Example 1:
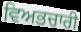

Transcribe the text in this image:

ਵਿਅਭਚਾਰੀ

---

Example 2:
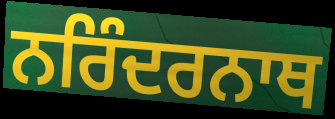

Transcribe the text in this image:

ਨਰਿੰਦਰਨਾਥ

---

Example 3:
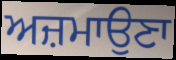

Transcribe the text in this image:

ਅਜ਼ਮਾਉਣਾ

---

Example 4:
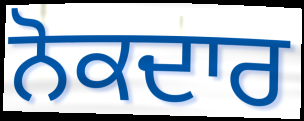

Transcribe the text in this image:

ਨੋਕਦਾਰ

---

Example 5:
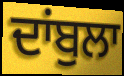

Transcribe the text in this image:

ਦਾਂਬੁਲਾ